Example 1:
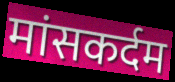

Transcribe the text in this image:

मांसकर्दम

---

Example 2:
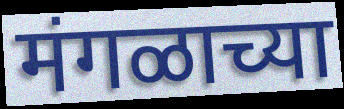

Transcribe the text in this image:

मंगळाच्या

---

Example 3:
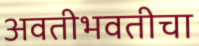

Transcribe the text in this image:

अवतीभवतीचा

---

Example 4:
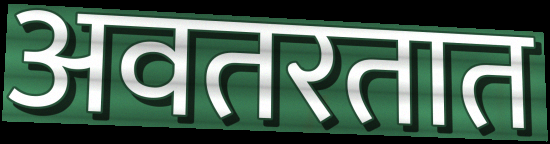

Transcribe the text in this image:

अवतरतात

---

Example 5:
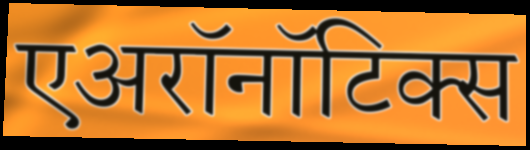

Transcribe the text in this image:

एअरॉनॉटिक्स